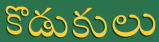
కొడుకులు